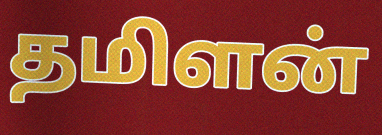
தமிளன்